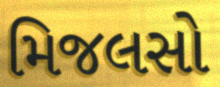
મિજલસો